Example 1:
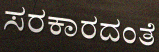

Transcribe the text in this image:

ಸರಕಾರದಂತೆ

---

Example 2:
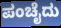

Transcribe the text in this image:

ಪಂಚೈದು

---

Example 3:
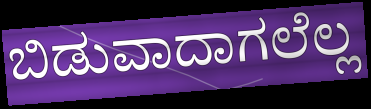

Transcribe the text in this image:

ಬಿಡುವಾದಾಗಲೆಲ್ಲ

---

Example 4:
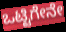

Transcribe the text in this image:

ಒಟ್ಟಿಗೇನೇ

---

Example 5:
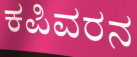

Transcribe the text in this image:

ಕಪಿವರನ